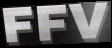
FFV